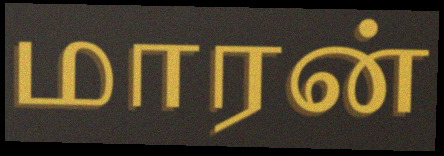
மாரன்